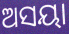
ଅସୟା